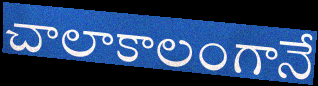
చాలాకాలంగానే